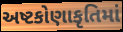
અષ્ટકોણાકૃતિમાં